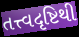
તત્ત્વદૃષ્ટિથી